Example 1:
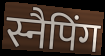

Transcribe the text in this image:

स्नैपिंग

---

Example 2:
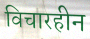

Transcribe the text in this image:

विचारहीन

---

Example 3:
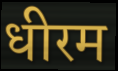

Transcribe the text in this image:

धीरम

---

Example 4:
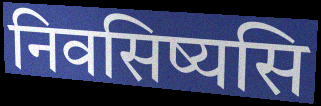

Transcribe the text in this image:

निवसिष्यसि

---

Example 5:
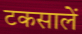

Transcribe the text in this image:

टकसालें